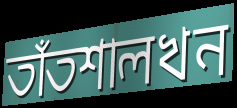
তাঁতশালখন